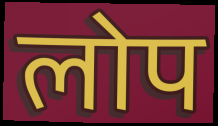
लोप